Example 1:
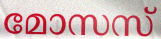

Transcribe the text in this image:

മോസസ്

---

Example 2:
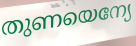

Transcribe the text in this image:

തുണയെന്യേ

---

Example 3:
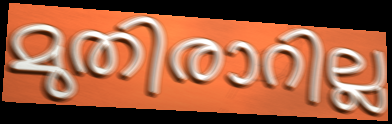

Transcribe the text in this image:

മുതിരാറില്ല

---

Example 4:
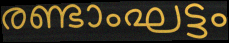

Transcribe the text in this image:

രണ്ടാംഘട്ടം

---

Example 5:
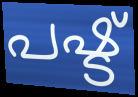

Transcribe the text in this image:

പഷ്ട്